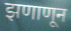
झणाणून